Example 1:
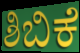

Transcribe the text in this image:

ಶಿಬಿಕೆ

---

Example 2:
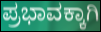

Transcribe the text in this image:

ಪ್ರಭಾವಕ್ಕಾಗಿ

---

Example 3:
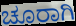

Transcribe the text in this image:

ಚೂರಾಗಿ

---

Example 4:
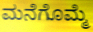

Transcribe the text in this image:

ಮನೆಗೊಮ್ಮೆ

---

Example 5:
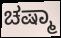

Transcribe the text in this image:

ಚಷ್ಮಾ